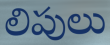
లిపులు